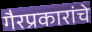
गैरप्रकारांचे